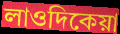
লাওদিকেয়া